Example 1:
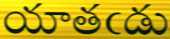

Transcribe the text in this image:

యాతఁడు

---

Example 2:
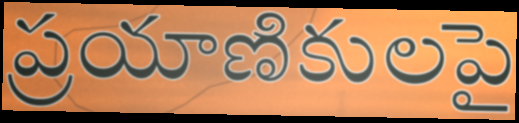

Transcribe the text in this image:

ప్రయాణికులపై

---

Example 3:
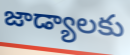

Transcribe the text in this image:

జాడ్యాలకు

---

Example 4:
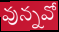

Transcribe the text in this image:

వున్నవో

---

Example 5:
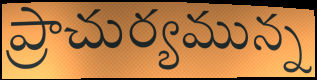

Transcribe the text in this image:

ప్రాచుర్యమున్న